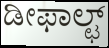
ಡೀಫಾಲ್ಟ್